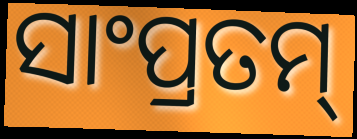
ସାଂପ୍ରତମ୍